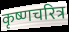
कृष्णचरित्र